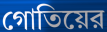
গোতিয়ের